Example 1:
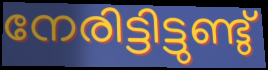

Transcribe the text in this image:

നേരിട്ടിട്ടുണ്ടു്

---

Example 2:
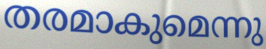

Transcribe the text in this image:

തരമാകുമെന്നു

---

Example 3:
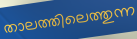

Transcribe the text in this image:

താലത്തിലെത്തുന്ന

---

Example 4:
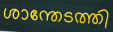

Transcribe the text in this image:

ശാന്തേടത്തി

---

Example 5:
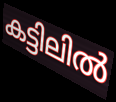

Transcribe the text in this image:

കട്ടിലിൽ